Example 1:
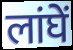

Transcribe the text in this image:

लांघें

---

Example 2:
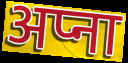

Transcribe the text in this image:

अप्ना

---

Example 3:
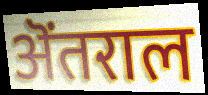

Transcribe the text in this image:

ऄंतराल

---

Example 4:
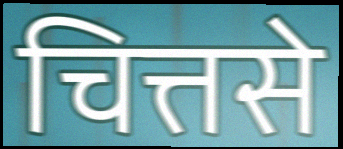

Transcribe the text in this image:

चित्तसे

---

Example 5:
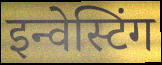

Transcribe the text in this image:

इन्वेस्टिंग